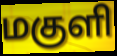
மகுளி